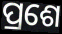
ପ୍ରଶେ